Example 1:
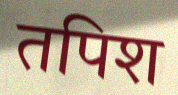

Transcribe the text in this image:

तपिश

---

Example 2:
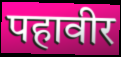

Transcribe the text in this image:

पहावीर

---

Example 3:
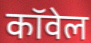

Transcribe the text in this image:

कॉवेल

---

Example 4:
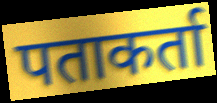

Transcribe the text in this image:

पताकर्ता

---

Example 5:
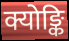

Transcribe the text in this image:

क्योङ्कि